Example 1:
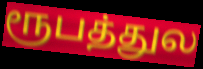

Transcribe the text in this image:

ரூபத்துல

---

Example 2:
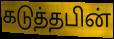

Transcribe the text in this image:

கடுத்தபின்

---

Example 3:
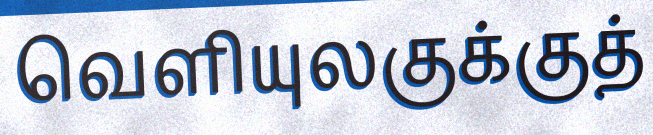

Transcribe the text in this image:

வெளியுலகுக்குத்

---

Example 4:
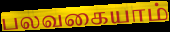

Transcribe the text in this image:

பலவகையாம்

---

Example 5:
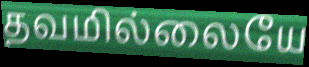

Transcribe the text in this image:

தவமில்லையே